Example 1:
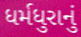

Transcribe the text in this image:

ધર્મધુરાનું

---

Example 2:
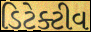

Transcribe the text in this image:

ડિટેક્ટીવ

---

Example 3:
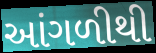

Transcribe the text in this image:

આંગળીથી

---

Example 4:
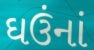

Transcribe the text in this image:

ઘઉંનાં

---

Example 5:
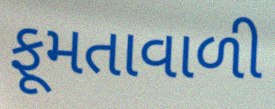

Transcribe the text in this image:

ફૂમતાવાળી